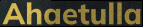
Ahaetulla